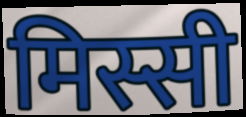
मिस्सी